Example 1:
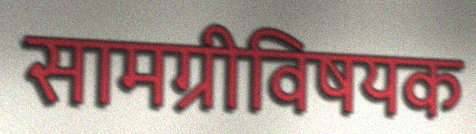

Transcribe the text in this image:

सामग्रीविषयक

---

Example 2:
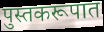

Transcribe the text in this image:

पुस्तकरूपात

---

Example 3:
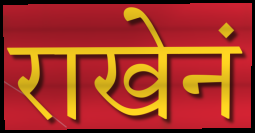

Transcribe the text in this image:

राखेनं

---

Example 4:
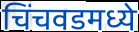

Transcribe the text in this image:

चिंचवडमध्ये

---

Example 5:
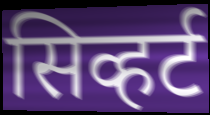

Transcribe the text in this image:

सिव्हर्ट